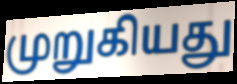
முறுகியது